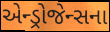
એન્ડ્રોજેન્સના